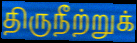
திருநீற்றுக்